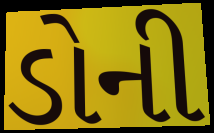
ડોની